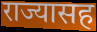
राज्यासह